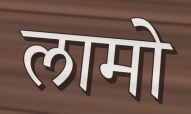
लामो